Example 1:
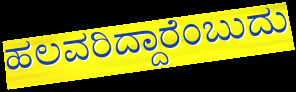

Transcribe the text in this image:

ಹಲವರಿದ್ದಾರೆಂಬುದು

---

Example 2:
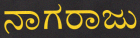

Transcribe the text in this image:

ನಾಗರಾಜು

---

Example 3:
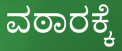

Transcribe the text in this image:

ವಠಾರಕ್ಕೆ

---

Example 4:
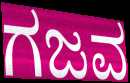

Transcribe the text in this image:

ಗಜವ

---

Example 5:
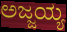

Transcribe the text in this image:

ಅಜ್ಜಯ್ಯ